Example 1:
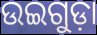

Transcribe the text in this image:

ଉଇଗୁଡ଼ା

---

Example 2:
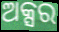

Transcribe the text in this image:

ଅକ୍ସର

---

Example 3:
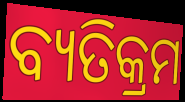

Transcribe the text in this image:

ବ୍ଯତିକ୍ରମ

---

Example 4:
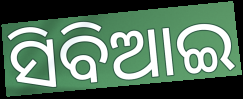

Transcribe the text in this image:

ସିବିଆଇ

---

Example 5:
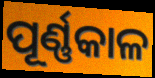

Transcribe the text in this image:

ପୂର୍ଣ୍ଣକାଳ